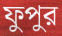
ফুপুর